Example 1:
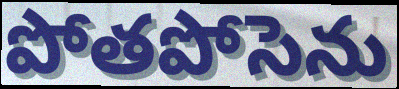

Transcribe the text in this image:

పోతపోసెను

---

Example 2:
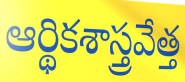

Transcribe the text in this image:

ఆర్థికశాస్త్రవేత్త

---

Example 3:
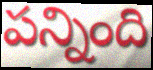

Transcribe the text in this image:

పన్నింది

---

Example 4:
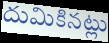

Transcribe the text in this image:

దుమికినట్లు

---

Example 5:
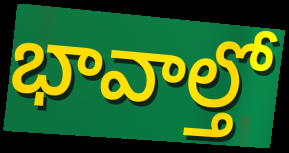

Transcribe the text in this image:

భావాల్తో